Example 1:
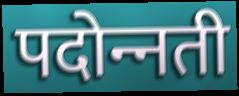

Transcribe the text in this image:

पदोन्‍नती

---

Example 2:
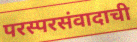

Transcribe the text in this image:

परस्परसंवादाची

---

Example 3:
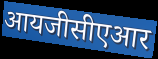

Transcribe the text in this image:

आयजीसीएआर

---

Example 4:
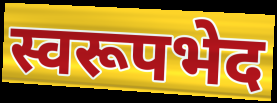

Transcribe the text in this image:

स्वरूपभेद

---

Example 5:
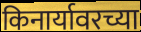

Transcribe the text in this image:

किनार्यावरच्या